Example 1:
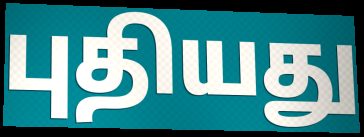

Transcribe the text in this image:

புதியது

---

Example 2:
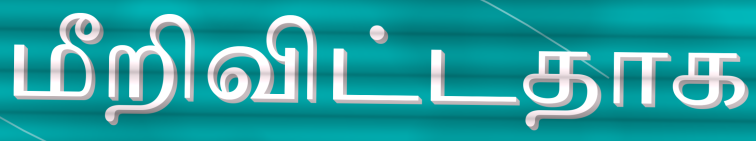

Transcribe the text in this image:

மீறிவிட்டதாக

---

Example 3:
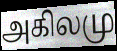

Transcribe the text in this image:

அகிலமு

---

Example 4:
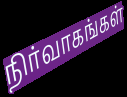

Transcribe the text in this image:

நிர்வாகங்கள்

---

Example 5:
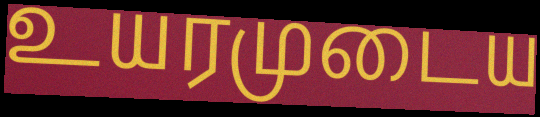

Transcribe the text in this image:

உயரமுடைய